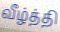
வீழ்த்தி